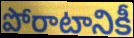
పోరాటానికీ